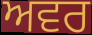
ਅਵਰ